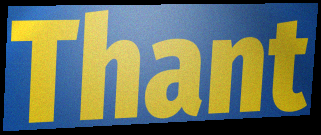
Thant